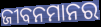
ଜୀବନମାନର